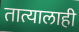
तात्यालाही